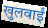
खुलवाईं